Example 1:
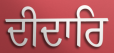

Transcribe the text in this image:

ਦੀਦਾਰਿ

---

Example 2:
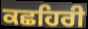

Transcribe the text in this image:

ਕਛਹਿਰੀ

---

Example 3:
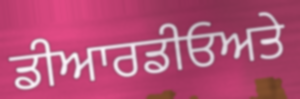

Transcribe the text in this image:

ਡੀਆਰਡੀਓਅਤੇ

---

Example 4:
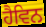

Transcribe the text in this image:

ਹੈਵਿਨ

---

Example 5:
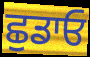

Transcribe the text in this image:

ਛੁਡਾਓ